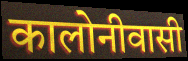
कालोनीवासी